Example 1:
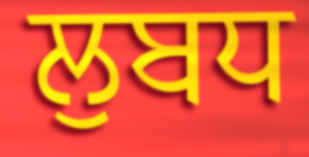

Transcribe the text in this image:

ਲੁਬਧ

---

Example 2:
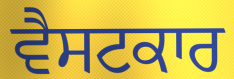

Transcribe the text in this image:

ਵੈਸਟਕਾਰ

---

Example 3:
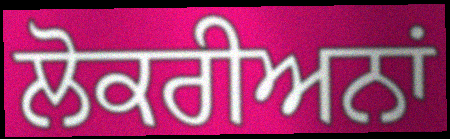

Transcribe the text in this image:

ਲੋਕਰੀਅਨਾਂ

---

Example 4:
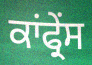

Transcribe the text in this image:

ਕਾਂਫ੍ਰੇਂਸ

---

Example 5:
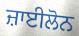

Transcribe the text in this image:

ਜ਼ਾਈਲੋਨ